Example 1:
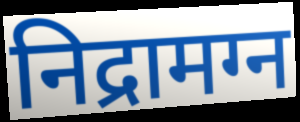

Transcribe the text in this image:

निद्रामग्न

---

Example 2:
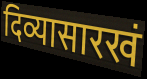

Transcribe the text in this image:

दिव्यासारखं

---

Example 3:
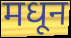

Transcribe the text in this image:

मधून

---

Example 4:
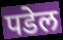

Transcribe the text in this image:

पडेल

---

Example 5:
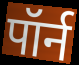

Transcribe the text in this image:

पॉर्न